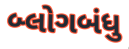
બ્લોગબંધુ